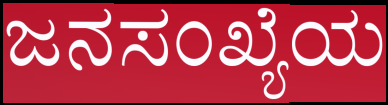
ಜನಸಂಖ್ಯೆಯ